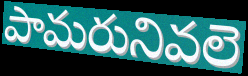
పామరునివలె